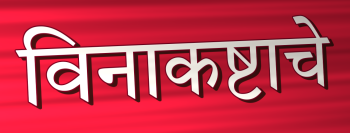
विनाकष्टाचे